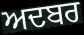
ਅਦਬਰ